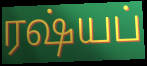
ரஷ்யப்